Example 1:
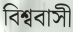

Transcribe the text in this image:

বিশ্ববাসী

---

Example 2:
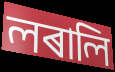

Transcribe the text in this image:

লৰালি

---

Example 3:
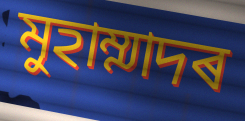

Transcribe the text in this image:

মুহাম্মাদৰ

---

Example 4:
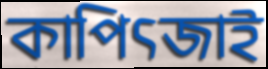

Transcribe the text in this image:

কাপিৎজাই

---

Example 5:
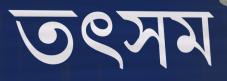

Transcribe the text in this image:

তৎসম